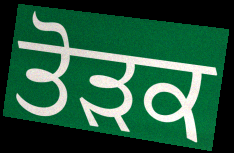
ਤੋੜਕ